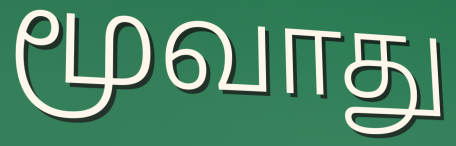
மூவாது